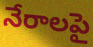
నేరాలపై